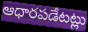
ఆధారపడేటట్లు